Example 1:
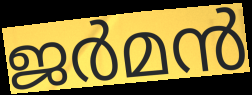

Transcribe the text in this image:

ജർമൻ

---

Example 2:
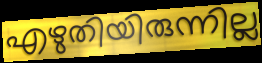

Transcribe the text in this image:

എഴുതിയിരുന്നില്ല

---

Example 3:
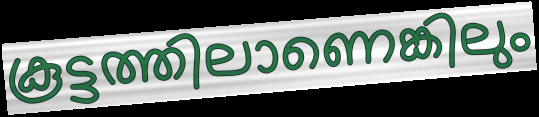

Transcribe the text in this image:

കൂട്ടത്തിലാണെങ്കിലും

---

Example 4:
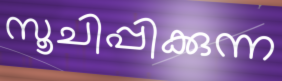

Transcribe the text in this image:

സൂചിപ്പിക്കുന്ന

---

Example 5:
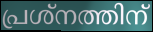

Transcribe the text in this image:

പ്രശ്നത്തിന്